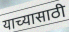
याच्यासाठी